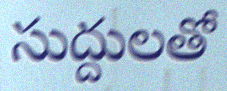
సుద్దులతో